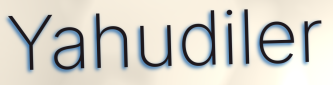
Yahudiler